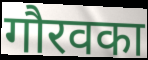
गौरवका